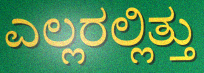
ಎಲ್ಲರಲ್ಲಿತ್ತು